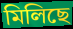
মিলিছে